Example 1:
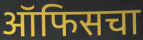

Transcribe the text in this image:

ऑफिसचा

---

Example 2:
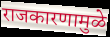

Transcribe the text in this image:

राजकारणामुळे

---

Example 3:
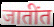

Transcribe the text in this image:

जातींत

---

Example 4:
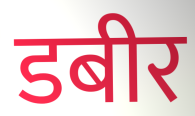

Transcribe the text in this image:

डबीर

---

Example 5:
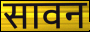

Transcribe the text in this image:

सावन